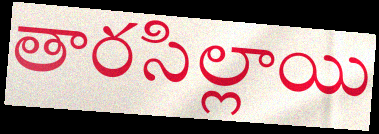
తారసిల్లాయి